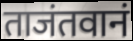
ताजंतवानं